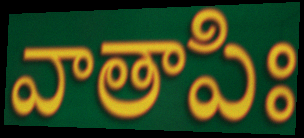
వాతాపిః